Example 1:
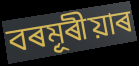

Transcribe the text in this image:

বৰমূৰীয়াৰ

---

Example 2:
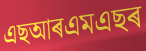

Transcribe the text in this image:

এছআৰএমএছৰ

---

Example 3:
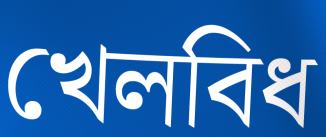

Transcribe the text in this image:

খেলবিধ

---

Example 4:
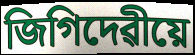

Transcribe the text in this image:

জিগিদেৱীয়ে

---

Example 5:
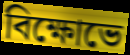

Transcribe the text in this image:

বিক্ষোভে